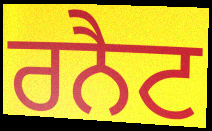
ਰਨੈਟ